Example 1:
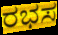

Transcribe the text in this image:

ರಭಸ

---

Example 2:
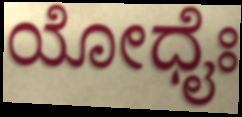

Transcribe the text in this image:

ಯೋಧೈಃ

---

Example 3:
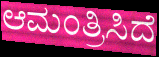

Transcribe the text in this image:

ಆಮಂತ್ರಿಸಿದೆ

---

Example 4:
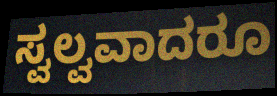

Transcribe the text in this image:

ಸ್ವಲ್ವವಾದರೂ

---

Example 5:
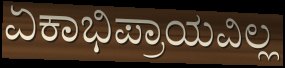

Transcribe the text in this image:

ಏಕಾಭಿಪ್ರಾಯವಿಲ್ಲ